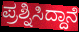
ಪ್ರಶ್ನಿಸಿದ್ದಾನೆ